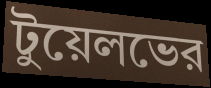
টুয়েলভের